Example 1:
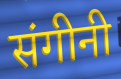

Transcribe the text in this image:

संगीनी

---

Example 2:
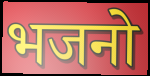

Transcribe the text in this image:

भजनो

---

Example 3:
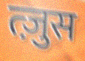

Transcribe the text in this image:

त्ज़ुस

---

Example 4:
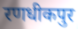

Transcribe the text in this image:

रणधीकपुर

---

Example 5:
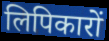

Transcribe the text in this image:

लिपिकारों